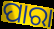
ପାରା